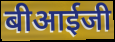
बीआईजी